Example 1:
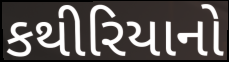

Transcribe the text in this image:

કથીરિયાનો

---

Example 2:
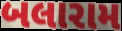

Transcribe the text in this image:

બલારામ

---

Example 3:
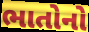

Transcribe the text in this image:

ભાતોનો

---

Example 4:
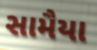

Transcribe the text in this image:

સામૈયા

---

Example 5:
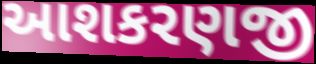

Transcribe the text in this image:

આશકરણજી